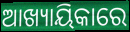
ଆଖ୍ୟାୟିକାରେ